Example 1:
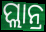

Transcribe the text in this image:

ପ୍ଲାନ୍ର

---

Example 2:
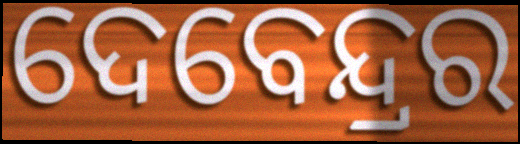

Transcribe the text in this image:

ଦେବେନ୍ଦ୍ରର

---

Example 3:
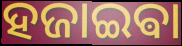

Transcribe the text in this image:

ହଜାଇଵା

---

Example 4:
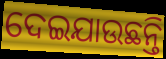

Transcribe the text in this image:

ଦେଇଯାଉଛନ୍ତି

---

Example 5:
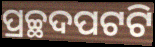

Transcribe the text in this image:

ପ୍ରଚ୍ଛଦପଟଟି